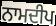
ਨਾਮਦੀਪ